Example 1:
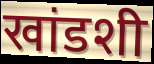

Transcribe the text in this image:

खांडशी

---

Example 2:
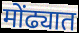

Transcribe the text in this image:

मोंढ्यात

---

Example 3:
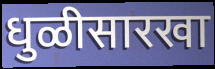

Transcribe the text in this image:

धुळीसारखा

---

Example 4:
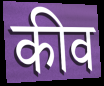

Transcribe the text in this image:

कीव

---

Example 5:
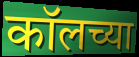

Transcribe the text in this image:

कॉलच्या